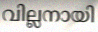
വില്ലനായി